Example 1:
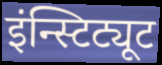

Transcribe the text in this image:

इंन्स्टिट्यूट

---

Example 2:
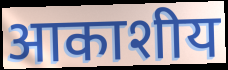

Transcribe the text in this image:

आकाशीय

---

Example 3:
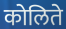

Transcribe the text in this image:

कोलिते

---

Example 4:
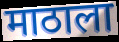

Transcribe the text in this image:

माठाला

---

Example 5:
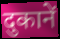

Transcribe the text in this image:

दुकानें